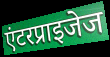
एंटरप्राइजेज